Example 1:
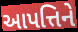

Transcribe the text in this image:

આપત્તિને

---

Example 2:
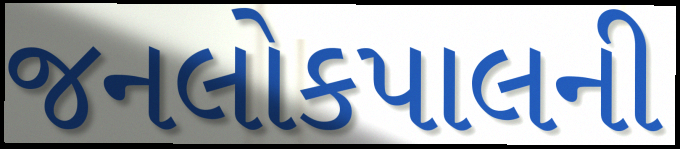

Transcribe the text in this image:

જનલોકપાલની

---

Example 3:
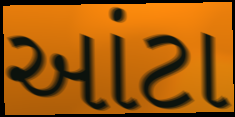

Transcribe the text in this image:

આંટા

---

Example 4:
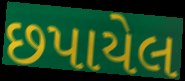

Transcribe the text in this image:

છપાયેલ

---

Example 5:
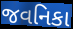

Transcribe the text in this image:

જવનિકા